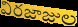
విరజాజుల